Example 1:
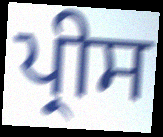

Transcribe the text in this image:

ਪ੍ਰੀਸ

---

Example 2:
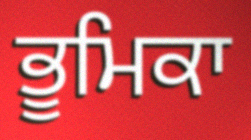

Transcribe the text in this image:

ਭੂਮਿਕਾ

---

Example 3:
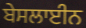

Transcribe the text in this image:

ਬੇਸਲਾਈਨ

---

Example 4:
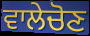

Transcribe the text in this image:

ਵਾਲੇਚੋਣ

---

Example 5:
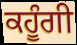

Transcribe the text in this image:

ਕਹੂੰਗੀ